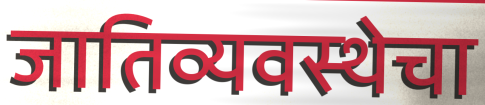
जातिव्यवस्थेचा